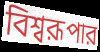
বিশ্বরূপার